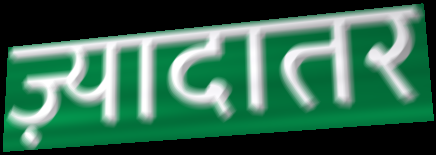
ज़्यादातर